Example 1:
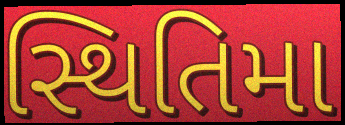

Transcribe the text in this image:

સ્થિતિમા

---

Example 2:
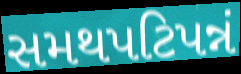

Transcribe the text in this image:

સમથપટિપન્નં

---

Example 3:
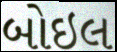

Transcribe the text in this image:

બોઇલ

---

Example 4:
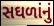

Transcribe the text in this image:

સઘળાંનું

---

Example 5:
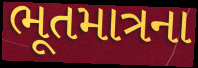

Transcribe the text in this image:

ભૂતમાત્રના